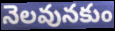
నెలవునకుం